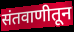
संतवाणीतून